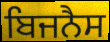
ਬਿਜਨੈਸ